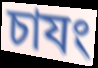
চাযং